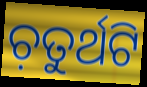
ଚ଼ତୁର୍ଥଟି